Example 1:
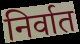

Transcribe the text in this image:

निर्वात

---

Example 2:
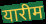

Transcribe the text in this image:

यारीम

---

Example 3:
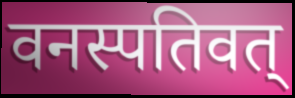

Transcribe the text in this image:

वनस्पतिवत्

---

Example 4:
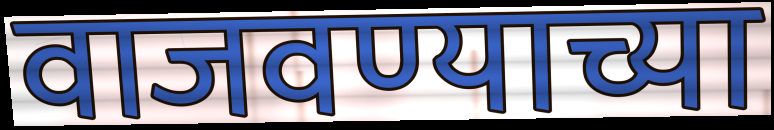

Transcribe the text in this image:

वाजवण्याच्या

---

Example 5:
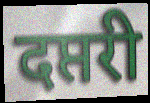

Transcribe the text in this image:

दप्तरी